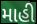
માહી